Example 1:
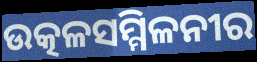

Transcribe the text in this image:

ଉତ୍କଳସମ୍ମିଳନୀର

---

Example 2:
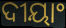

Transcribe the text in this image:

ଦୀୟାଂ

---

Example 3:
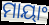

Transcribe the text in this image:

ମାୟାଂ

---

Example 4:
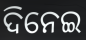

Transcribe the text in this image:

ଦିନେଇ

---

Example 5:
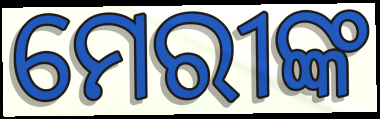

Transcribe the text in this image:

ମେରୀଙ୍କ